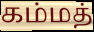
கம்மத்